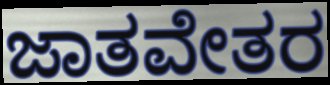
ಜಾತವೇತರ